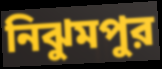
নিঝুমপুর